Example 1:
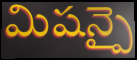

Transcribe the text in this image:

మిషన్పై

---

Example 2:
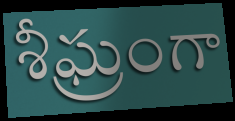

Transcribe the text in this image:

శీఘ్రంగా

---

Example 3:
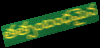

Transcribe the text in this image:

తత్సంబంధమైన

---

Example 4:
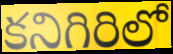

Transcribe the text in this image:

కనిగిరిలో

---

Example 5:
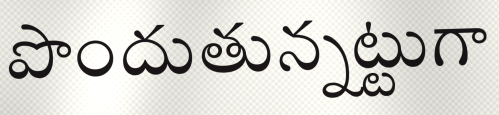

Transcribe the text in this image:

పొందుతున్నట్టుగా